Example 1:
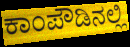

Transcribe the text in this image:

ಕಾಂಪೌಡಿನಲ್ಲಿ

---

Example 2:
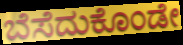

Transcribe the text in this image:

ಬೆಸೆದುಕೊಂಡೇ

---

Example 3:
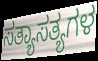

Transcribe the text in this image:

ಸತ್ಯಾಸತ್ಯಗಳ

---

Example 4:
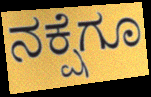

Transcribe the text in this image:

ನಕ್ಷೆಗೂ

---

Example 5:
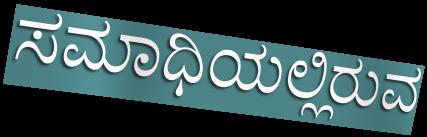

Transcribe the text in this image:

ಸಮಾಧಿಯಲ್ಲಿರುವ